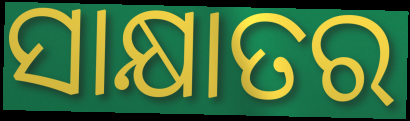
ସାକ୍ଷାତର